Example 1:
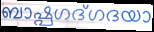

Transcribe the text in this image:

ബാഷ്പഗദ്ഗദയാ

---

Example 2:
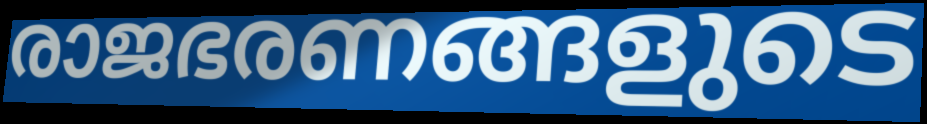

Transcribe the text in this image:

രാജഭരണങ്ങളുടെ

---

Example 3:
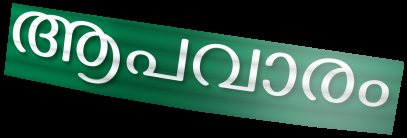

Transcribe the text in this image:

ആപവാരം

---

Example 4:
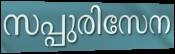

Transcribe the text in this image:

സപ്പുരിസേന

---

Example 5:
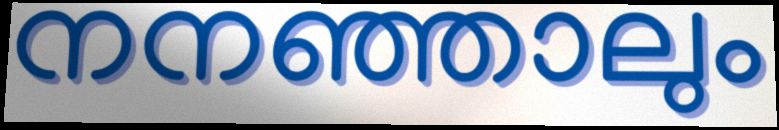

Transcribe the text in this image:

നനഞ്ഞാലും